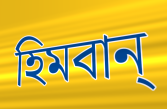
হিমবান্